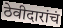
ठेवीदारांचं